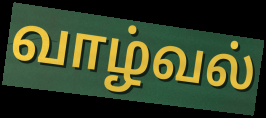
வாழ்வல்